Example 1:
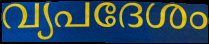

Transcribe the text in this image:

വ്യപദേശം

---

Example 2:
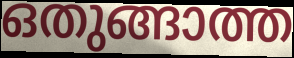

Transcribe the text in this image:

ഒതുങ്ങാത്ത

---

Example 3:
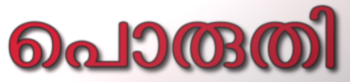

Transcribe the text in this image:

പൊരുതി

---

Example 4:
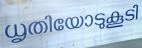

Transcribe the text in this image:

ധൃതിയോടുകൂടി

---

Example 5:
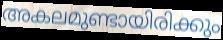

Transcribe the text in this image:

അകലമുണ്ടായിരിക്കും